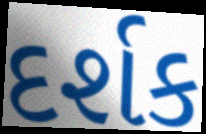
દર્શક